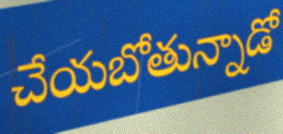
చేయబోతున్నాడో